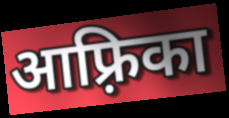
आफ़्रिका